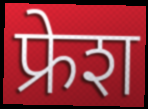
फ्रेश